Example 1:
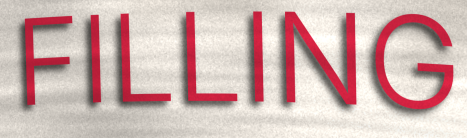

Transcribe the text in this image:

FILLING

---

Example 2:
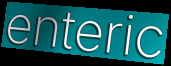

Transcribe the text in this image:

enteric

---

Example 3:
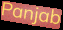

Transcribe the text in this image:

Panjab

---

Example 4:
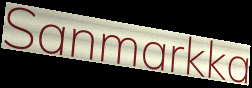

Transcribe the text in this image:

Sanmarkka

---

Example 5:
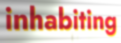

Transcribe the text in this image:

inhabiting